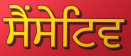
ਸੈਂਸੇਟਿਵ